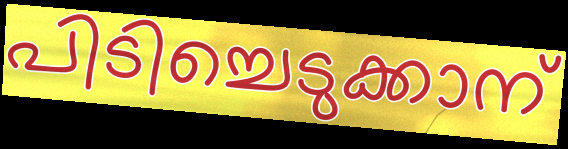
പിടിച്ചെടുക്കാന്